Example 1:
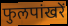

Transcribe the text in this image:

फुलपांखरें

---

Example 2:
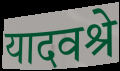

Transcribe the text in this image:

यादवश्रे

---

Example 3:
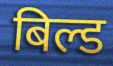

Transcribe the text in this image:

बिल्ड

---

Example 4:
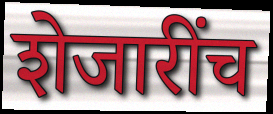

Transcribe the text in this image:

शेजारींच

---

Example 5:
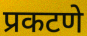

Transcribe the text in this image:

प्रकटणे